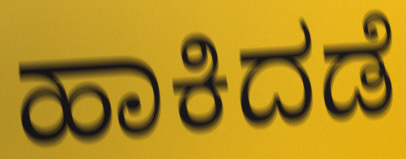
ಹಾಕಿದಡೆ